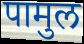
पामुल